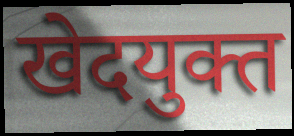
खेदयुक्त